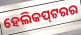
ହେଲିକପ୍‌ଟରର